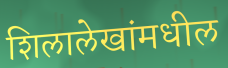
शिलालेखांमधील